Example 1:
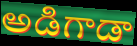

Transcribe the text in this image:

అడిగాడా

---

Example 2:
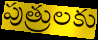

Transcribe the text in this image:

పుత్రులకు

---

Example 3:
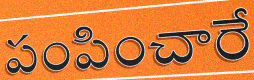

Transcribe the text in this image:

పంపించారే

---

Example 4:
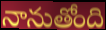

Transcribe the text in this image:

నానుతోంది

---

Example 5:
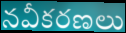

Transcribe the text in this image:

నవీకరణలు